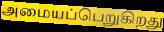
அமையப்பெறுகிறது